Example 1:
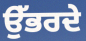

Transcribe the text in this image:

ਉੱਭਰਦੇ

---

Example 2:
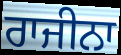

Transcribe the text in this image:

ਰਾਜੀਨਾ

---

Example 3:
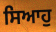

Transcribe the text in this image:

ਸਿਆਹੁ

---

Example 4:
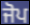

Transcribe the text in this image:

ਜੋਪ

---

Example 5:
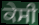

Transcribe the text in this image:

ਕੇਸੀ